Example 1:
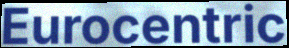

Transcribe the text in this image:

Eurocentric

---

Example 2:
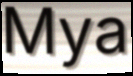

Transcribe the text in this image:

Mya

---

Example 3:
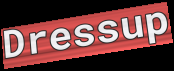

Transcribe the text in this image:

Dressup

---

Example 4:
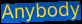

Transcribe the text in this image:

Anybody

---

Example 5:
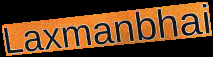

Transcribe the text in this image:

Laxmanbhai